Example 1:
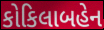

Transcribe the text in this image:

કોકિલાબહેન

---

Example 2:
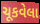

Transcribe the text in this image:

ચૂકવેલા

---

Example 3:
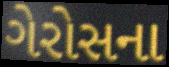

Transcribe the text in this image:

ગેરોસના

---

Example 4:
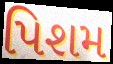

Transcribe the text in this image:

પિશમ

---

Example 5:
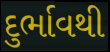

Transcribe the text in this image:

દુર્ભાવથી